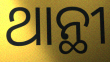
ଥାନ୍ଥୀ